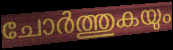
ചോർത്തുകയും